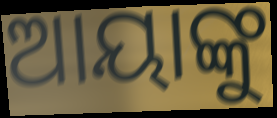
ଆୟାଙ୍କୁ